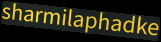
sharmilaphadke